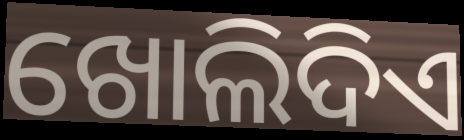
ଖୋଲିଦିଏ